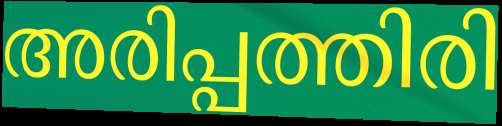
അരിപ്പത്തിരി